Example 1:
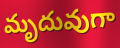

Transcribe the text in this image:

మృదువుగా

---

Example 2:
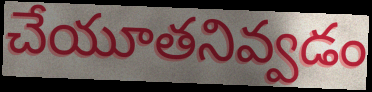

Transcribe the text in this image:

చేయూతనివ్వడం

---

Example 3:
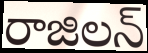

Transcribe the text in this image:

రాజిలన్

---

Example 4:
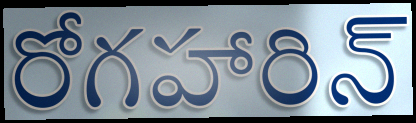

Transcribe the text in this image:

రోగహారిన్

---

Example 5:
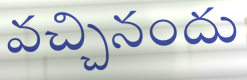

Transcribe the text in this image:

వచ్చినందు